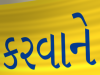
કરવાને